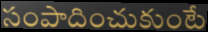
సంపాదించుకుంటే